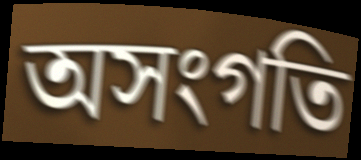
অসংগতি